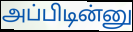
அப்பிடின்னு